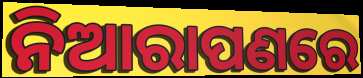
ନିଆରାପଣରେ